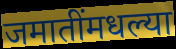
जमातींमधल्या